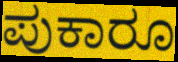
ಪುಕಾರೂ